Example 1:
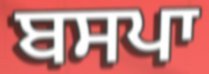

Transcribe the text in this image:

ਬਸਪਾ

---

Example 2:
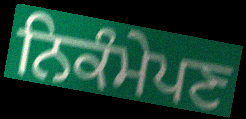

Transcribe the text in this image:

ਨਿਕੰਮੇਪਣ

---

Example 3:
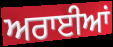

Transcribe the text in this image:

ਅਰਾਈਆਂ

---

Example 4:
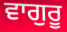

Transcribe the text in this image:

ਵਾਗੁਰੂ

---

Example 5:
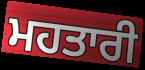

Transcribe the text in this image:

ਮਹਤਾਰੀ